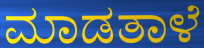
ಮಾಡತಾಳೆ